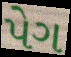
પેગ